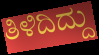
ತಿಳಿದಿದ್ದು